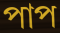
পাপ